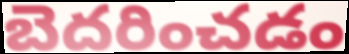
బెదరించడం